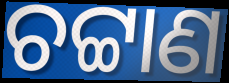
ଚଟ୍ଟାଣ